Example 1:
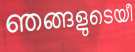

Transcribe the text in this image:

ഞങ്ങളുടെയീ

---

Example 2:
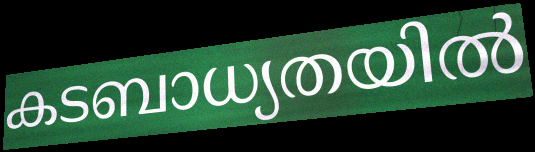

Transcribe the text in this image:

കടബാധ്യതയിൽ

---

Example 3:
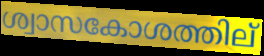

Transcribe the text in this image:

ശ്വാസകോശത്തില്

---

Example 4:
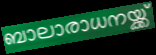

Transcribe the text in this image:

ബാലാരാധനയ്ക്ക്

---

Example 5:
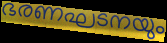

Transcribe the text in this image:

ഭരണഘടനയും